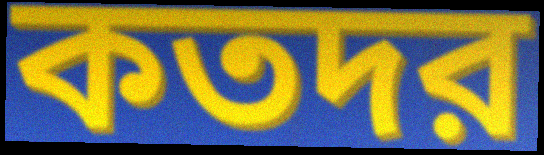
কতদর